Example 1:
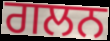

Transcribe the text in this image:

ਗਲਨ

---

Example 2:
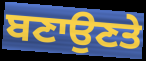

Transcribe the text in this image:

ਬਣਾਉਣਤੇ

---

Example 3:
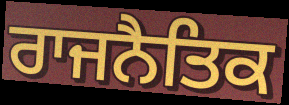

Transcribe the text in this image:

ਰਾਜਨੈਤਿਕ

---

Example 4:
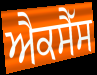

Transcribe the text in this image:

ਐਕਸੈੱਸ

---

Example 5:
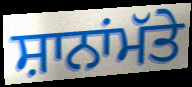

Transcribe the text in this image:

ਸ਼ਾਨਾਂਮੱਤੇ